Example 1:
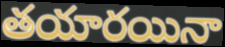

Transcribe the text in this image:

తయారయినా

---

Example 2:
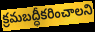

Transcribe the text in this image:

క్రమబద్ధీకరించాలని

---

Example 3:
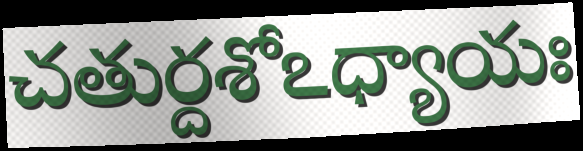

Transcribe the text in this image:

చతుర్దశోఽధ్యాయః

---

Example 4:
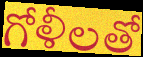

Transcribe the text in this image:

గోళీలతో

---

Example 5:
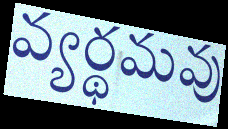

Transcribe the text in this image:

వ్యర్థమవు